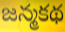
జన్మకథ